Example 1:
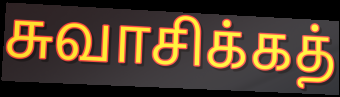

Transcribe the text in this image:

சுவாசிக்கத்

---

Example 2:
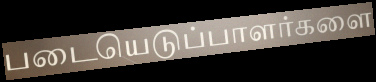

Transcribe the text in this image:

படையெடுப்பாளர்களை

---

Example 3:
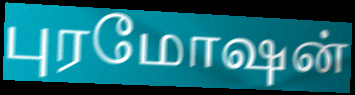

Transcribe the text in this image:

புரமோஷன்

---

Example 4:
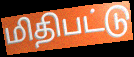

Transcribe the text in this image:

மிதிபட்டு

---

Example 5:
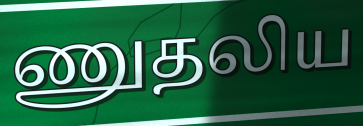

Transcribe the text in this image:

ணுதலிய